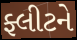
ફ્લીટને